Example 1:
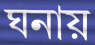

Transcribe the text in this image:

ঘনায়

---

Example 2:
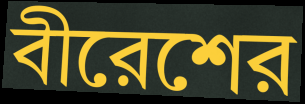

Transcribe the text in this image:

বীরেশের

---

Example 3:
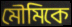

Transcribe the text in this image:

মৌমিকে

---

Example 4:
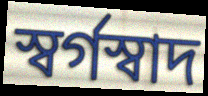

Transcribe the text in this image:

স্বর্গস্বাদ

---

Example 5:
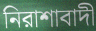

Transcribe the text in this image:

নিরাশাবাদী